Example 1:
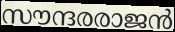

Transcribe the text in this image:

സൗന്ദരരാജൻ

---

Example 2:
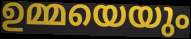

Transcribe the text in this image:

ഉമ്മയെയും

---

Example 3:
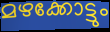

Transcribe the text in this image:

മഴക്കോട്ടും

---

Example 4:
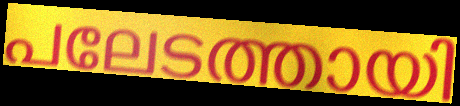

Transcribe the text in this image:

പലേടത്തായി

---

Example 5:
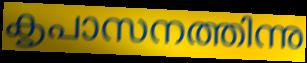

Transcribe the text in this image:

കൃപാസനത്തിന്നു